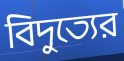
বিদুত্যের